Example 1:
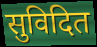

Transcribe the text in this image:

सुविदित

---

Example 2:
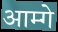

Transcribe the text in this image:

आम्गे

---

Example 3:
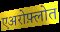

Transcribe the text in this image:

एअरोफ़्लोत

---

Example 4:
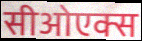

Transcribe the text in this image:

सीओएक्स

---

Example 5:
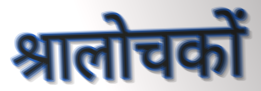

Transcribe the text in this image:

श्रालोचकों